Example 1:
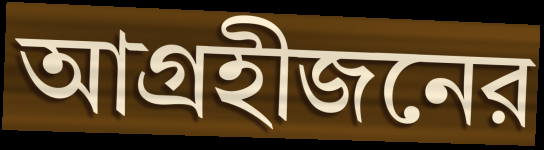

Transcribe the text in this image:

আগ্রহীজনের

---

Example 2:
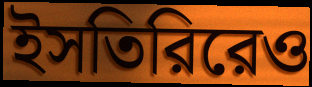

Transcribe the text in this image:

ইসতিরিরেও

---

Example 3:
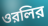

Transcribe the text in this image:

ওরলির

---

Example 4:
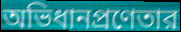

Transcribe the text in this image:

অভিধানপ্রণেতার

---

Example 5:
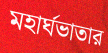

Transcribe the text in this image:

মহার্ঘভাতার